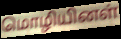
மொழியினள்